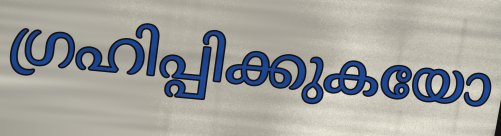
ഗ്രഹിപ്പിക്കുകയോ